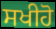
ਸਖੀਹੋ